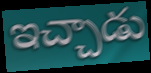
ఇచ్చాడు